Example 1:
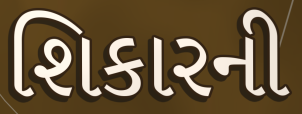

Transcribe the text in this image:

શિકારની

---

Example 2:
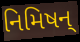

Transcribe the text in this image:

નિમિષન્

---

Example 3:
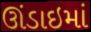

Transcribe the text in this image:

ઊંડાઇમાં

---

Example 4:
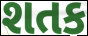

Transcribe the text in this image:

શતક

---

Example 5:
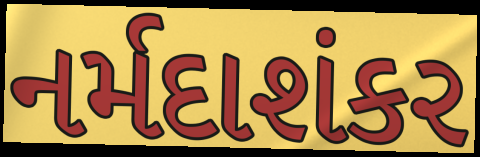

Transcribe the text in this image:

નર્મદાશંકર